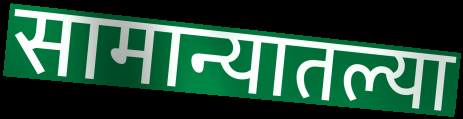
सामान्यातल्या